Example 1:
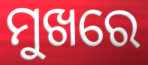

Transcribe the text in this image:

ମୁଖରେ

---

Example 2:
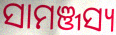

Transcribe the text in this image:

ସାମଞ୍ଜସ୍ୟ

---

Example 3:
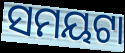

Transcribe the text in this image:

ସମୟଟା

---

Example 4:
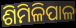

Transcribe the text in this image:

ଶିମିଳିପାଳ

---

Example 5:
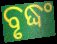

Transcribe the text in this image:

ବୃଦ୍ଧଂ